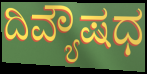
ದಿವ್ಯೌಷಧ